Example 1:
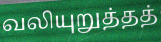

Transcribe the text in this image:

வலியுறுத்தத்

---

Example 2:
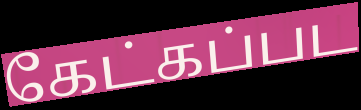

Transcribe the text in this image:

கேட்கப்பட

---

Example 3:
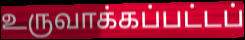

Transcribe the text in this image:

உருவாக்கப்பட்டப்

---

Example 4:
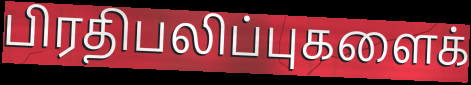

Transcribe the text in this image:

பிரதிபலிப்புகளைக்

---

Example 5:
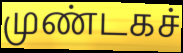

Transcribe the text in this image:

முண்டகச்